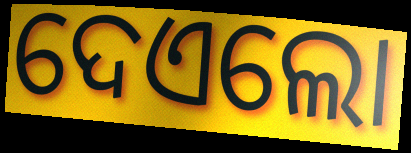
ଦେଏଲୋ